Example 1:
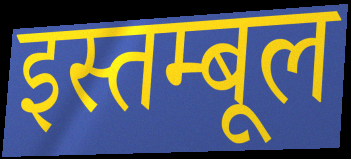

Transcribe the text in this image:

इस्तम्बूल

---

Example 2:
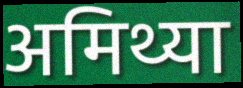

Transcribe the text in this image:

अमिथ्या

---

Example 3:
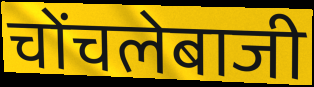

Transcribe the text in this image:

चोंचलेबाजी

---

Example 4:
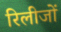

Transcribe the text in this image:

रिलीजों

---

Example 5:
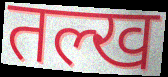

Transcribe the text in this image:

तल्ख